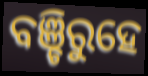
ବଞ୍ଚିରୁହେ